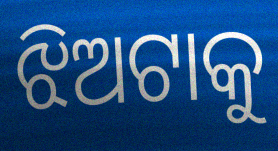
ଝିଅଟାକୁ